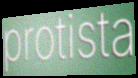
protista